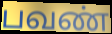
பவண்